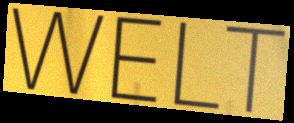
WELT